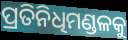
ପ୍ରତିନିଧିମଣ୍ଡଳକୁ